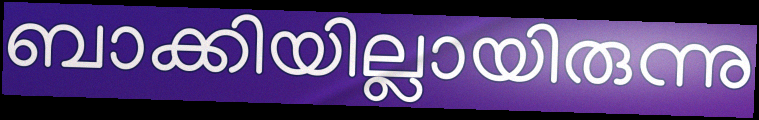
ബാക്കിയില്ലായിരുന്നു